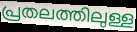
പ്രതലത്തിലുള്ള